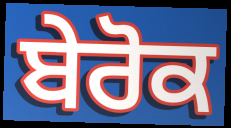
ਬੇਰੋਕ